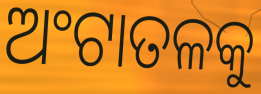
ଅଂଟାତଳକୁ